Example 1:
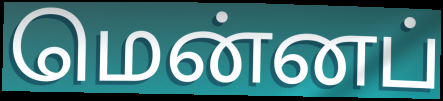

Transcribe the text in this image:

மென்னப்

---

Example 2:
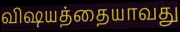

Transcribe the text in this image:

விஷயத்தையாவது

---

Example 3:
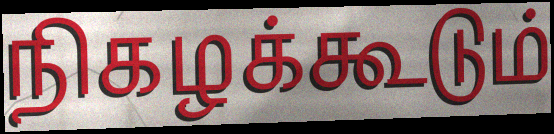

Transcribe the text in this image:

நிகழக்கூடும்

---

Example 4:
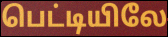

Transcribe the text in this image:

பெட்டியிலே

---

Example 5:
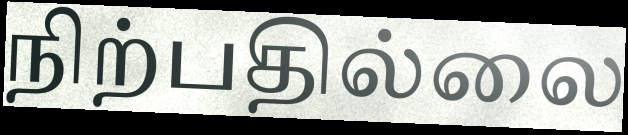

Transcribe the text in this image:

நிற்பதில்லை